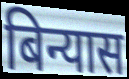
बिन्यास